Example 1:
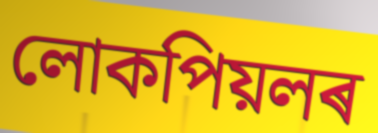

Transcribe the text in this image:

লোকপিয়লৰ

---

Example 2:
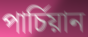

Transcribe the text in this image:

পাৰ্চিয়ান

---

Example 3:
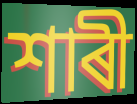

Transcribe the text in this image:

শাৰী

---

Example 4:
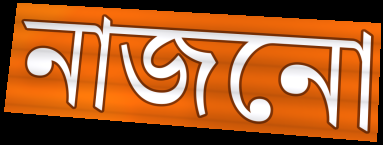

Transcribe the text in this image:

নাজনো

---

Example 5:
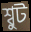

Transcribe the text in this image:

শ্বুট